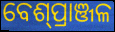
ବେଶ୍‌ପ୍ରାଞ୍ଜଳ